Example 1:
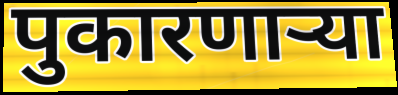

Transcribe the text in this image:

पुकारणार्‍या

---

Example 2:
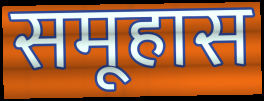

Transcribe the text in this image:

समूहास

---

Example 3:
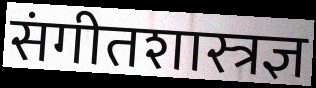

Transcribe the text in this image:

संगीतशास्त्रज्ञ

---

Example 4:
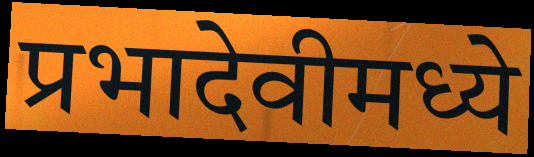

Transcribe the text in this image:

प्रभादेवीमध्ये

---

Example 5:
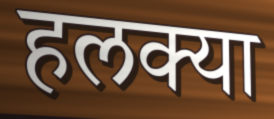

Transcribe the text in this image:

हलक्या